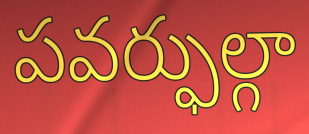
పవర్ఫుల్గా